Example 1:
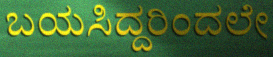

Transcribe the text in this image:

ಬಯಸಿದ್ದರಿಂದಲೇ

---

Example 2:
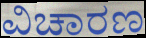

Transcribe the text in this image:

ವಿಚಾರಣ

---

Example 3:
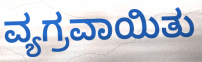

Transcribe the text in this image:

ವ್ಯಗ್ರವಾಯಿತು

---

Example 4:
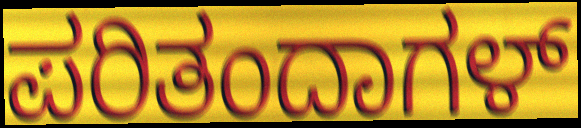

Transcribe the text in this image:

ಪರಿತಂದಾಗಳ್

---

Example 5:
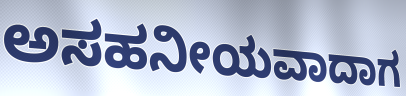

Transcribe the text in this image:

ಅಸಹನೀಯವಾದಾಗ